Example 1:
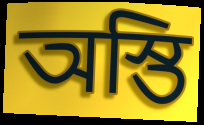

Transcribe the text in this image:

অস্তি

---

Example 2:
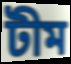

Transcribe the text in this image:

টীম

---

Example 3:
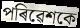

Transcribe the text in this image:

পৰিৱেশকে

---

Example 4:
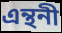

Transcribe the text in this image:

এন্থনী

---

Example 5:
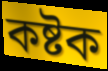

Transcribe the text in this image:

কষ্টক